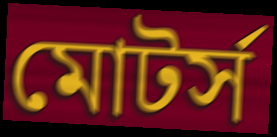
মোটর্স